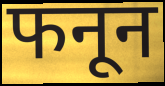
फनून